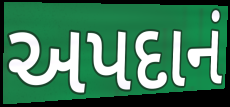
અપદાનં